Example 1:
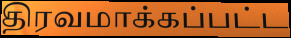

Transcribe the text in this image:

திரவமாக்கப்பட்ட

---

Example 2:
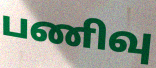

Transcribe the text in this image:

பணிவு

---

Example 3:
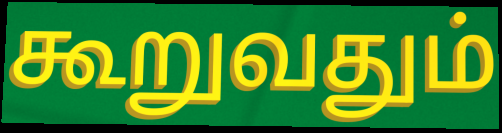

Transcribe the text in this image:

கூறுவதும்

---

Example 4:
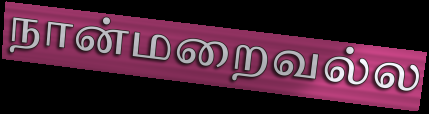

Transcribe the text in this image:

நான்மறைவல்ல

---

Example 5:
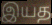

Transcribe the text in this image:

இயத